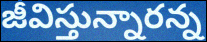
జీవిస్తున్నారన్న